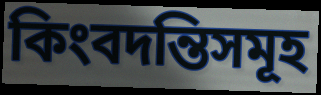
কিংবদন্তিসমূহ